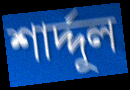
শার্দ্দূল